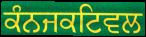
ਕੰਨਜਕਟਿਵਲ